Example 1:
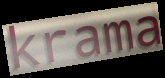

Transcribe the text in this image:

krama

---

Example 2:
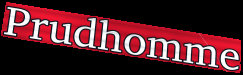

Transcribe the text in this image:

Prudhomme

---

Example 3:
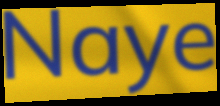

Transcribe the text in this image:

Naye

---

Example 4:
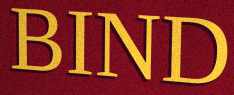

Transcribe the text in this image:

BIND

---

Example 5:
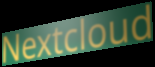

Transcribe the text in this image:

Nextcloud